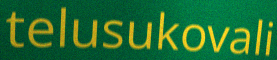
telusukovali